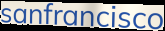
sanfrancisco